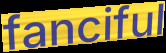
fanciful